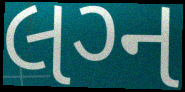
લગ્‍ન